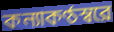
কন্যাকণ্ঠস্বরে